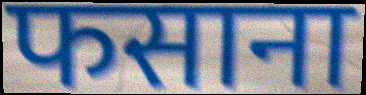
फसाना